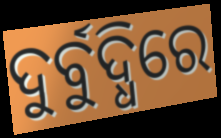
ଦୁର୍ବୁଦ୍ଧିରେ